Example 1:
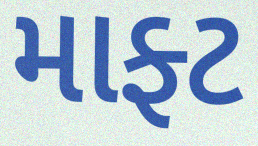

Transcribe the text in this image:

માફ્ટ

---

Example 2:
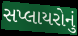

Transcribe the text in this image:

સપ્લાયરોનું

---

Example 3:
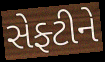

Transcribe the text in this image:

સેફ્ટીને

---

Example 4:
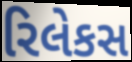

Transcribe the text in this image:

રિલેકસ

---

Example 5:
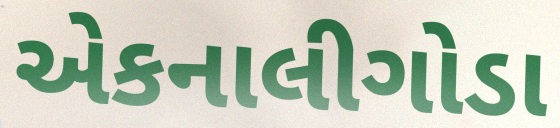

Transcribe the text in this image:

એકનાલીગોડા